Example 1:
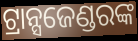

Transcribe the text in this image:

ଟ୍ରାନ୍ସଜେଣ୍ଡରଙ୍କ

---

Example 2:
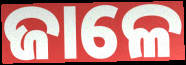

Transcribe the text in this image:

ଜାଳେ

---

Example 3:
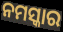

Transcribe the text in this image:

ନମସ୍କାର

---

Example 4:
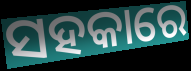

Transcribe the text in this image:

ସହକାରେ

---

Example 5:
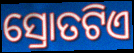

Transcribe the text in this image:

ସ୍ରୋତଟିଏ